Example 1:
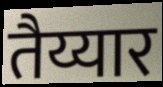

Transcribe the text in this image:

तैय्यार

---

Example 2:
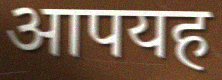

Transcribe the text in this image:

आपयह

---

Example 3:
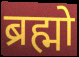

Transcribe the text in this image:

ब्रह्मो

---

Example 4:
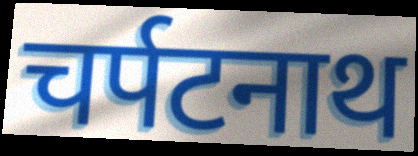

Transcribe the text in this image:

चर्पटनाथ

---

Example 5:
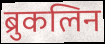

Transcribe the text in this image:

ब्रुकलिन